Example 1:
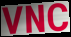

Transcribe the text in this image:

VNC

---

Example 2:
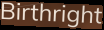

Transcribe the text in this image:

Birthright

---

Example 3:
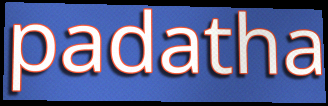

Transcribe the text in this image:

padatha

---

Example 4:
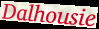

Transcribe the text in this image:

Dalhousie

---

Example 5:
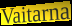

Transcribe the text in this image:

Vaitarna